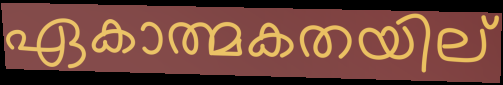
ഏകാത്മകതയില്